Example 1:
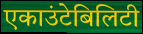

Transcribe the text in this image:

एकाउंटेबिलिटी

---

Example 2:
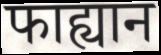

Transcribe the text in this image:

फाह्यान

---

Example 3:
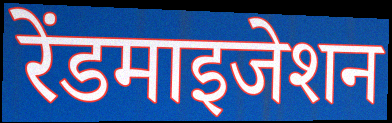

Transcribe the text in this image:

रेंडमाइजेशन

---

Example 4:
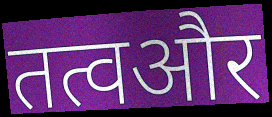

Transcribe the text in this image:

तत्वऔर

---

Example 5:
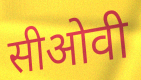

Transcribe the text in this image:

सीओवी